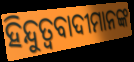
ହିନ୍ଦୁତ୍ଵବାଦୀମାନଙ୍କ